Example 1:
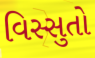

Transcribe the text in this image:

વિસ્સુતો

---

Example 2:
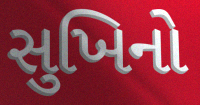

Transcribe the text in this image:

સુખિનો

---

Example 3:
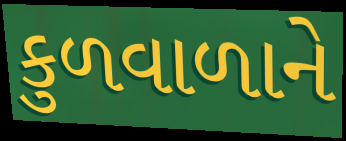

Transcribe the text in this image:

કુળવાળાને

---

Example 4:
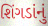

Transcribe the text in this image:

શિંગડાંનું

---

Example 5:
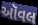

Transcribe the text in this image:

ઑવલ